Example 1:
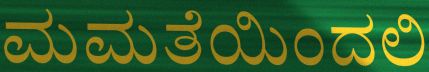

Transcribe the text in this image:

ಮಮತೆಯಿಂದಲಿ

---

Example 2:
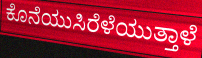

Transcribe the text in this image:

ಕೊನೆಯುಸಿರೆಳೆಯುತ್ತಾಳೆ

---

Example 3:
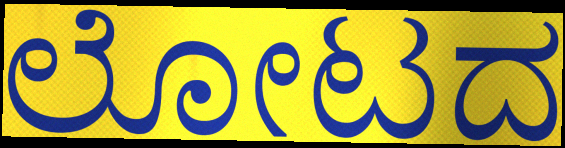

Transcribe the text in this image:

ಲೋಟದ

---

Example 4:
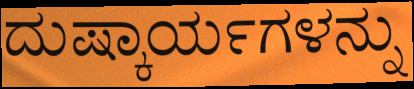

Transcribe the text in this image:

ದುಷ್ಕಾರ್ಯಗಳನ್ನು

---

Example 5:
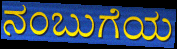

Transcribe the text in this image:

ನಂಬುಗೆಯ